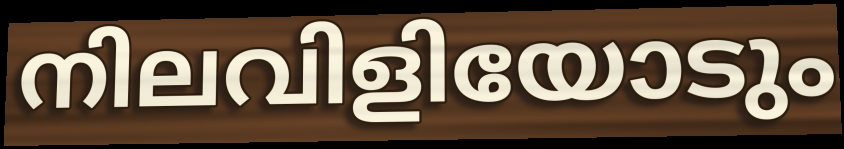
നിലവിളിയോടും